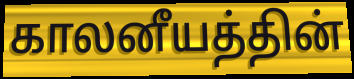
காலனீயத்தின்